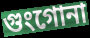
গুংগোনা